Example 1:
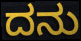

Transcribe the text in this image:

ದನು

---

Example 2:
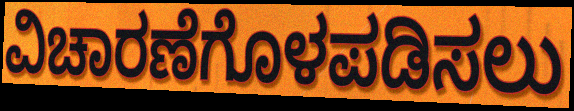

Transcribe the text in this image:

ವಿಚಾರಣೆಗೊಳಪಡಿಸಲು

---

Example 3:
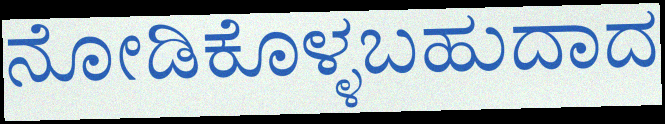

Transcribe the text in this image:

ನೋಡಿಕೊಳ್ಳಬಹುದಾದ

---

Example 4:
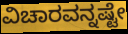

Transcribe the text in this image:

ವಿಚಾರವನ್ನಷ್ಟೇ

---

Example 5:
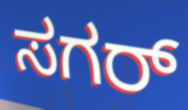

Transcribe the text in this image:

ಸಗರ್